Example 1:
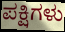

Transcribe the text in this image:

ಪಕ್ಷಿಗಳು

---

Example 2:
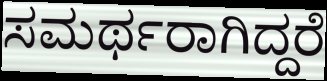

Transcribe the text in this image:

ಸಮರ್ಥರಾಗಿದ್ದರೆ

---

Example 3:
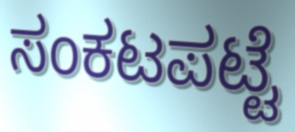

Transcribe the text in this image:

ಸಂಕಟಪಟ್ಟೆ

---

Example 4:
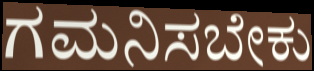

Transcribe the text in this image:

ಗಮನಿಸಬೇಕು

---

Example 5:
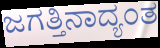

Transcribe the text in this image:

ಜಗತ್ತಿನಾದ್ಯಂತ